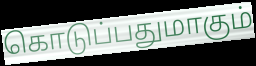
கொடுப்பதுமாகும்